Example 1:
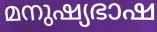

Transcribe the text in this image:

മനുഷ്യഭാഷ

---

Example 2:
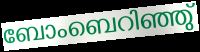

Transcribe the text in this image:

ബോംബെറിഞ്ഞു്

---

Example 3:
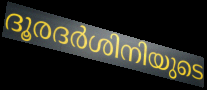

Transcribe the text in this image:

ദൂരദർശിനിയുടെ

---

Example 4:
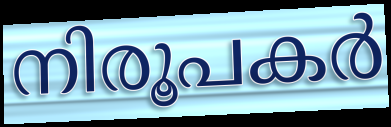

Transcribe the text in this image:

നിരൂപകർ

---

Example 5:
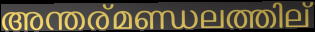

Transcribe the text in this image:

അന്തര്മണ്ഡലത്തില്